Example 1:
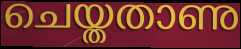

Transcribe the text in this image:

ചെയ്തതാണു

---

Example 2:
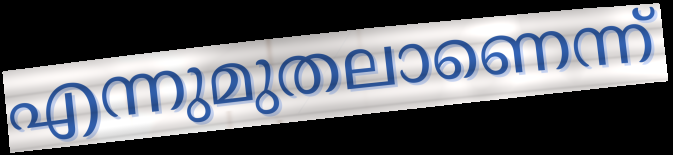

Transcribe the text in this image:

എന്നുമുതലാണെന്ന്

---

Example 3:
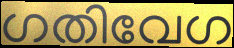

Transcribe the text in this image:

ഗതിവേഗ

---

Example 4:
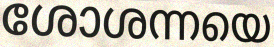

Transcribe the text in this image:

ശോശന്നയെ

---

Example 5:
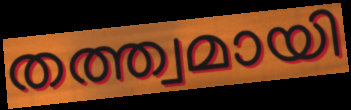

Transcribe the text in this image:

തത്ത്വമായി